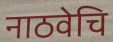
नाठवेचि